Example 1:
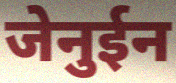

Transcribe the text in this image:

जेनुईन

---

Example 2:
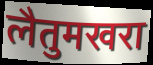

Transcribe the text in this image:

लैतुमखरा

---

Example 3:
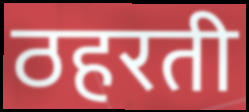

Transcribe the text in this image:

ठहरती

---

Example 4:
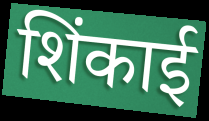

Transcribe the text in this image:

शिंकाई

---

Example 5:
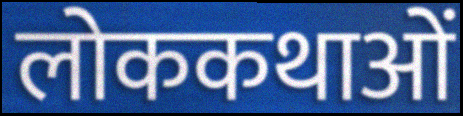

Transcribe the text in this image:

लोककथाओं